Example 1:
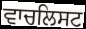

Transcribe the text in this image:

ਵਾਚਲਿਸਟ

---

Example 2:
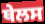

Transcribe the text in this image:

ਥੇਲਸ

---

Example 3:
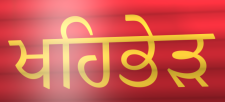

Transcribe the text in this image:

ਖਹਿਭੇੜ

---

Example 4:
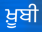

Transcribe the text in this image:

ਖ਼ੂਬੀ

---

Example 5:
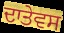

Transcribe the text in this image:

ਦਾਤੇਵਸ